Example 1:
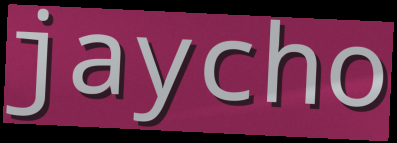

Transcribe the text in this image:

jaycho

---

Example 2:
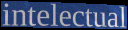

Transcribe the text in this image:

intelectual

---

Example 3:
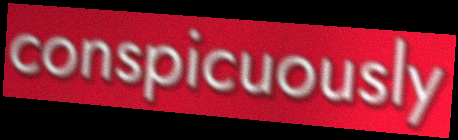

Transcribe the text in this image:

conspicuously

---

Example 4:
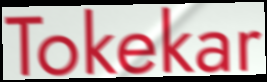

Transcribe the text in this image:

Tokekar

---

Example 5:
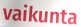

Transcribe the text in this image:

vaikunta